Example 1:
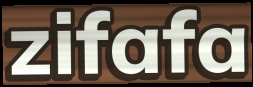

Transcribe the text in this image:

zifafa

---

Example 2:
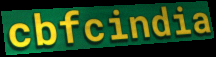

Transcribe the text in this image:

cbfcindia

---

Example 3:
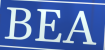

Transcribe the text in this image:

BEA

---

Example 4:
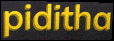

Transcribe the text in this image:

piditha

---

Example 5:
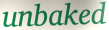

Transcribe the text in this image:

unbaked